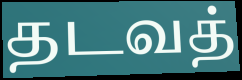
தடவத்